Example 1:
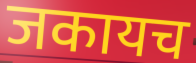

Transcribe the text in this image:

जकायच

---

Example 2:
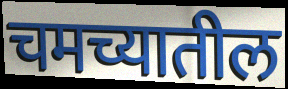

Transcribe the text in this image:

चमच्यातील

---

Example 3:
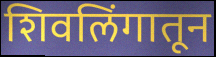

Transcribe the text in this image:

शिवलिंगातून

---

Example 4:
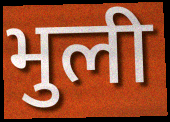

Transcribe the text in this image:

भुली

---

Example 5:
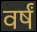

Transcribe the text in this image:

वर्षं